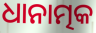
ଧାନାତ୍ମକ